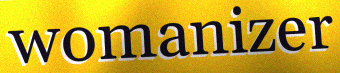
womanizer